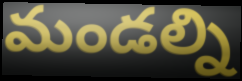
మండల్ని